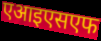
एआइएसएफ